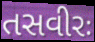
તસવીરઃ